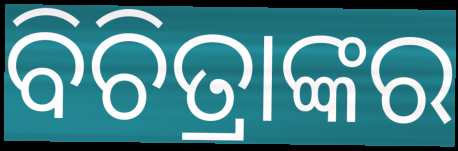
ବିଚିତ୍ରାଙ୍କର